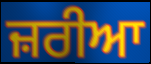
ਜ਼ਰੀਆ